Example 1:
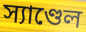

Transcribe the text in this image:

স্যাণ্ডেল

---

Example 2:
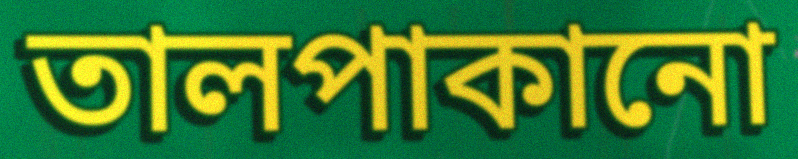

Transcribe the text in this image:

তালপাকানো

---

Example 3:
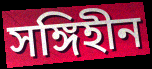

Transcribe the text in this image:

সঙ্গিহীন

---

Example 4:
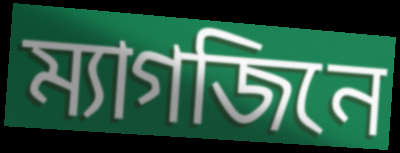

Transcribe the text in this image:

ম্যাগজিনে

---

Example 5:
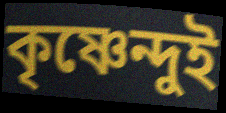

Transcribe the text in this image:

কৃষ্ণেন্দুই